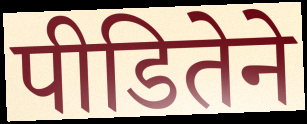
पीडितेने